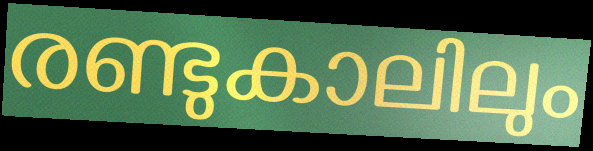
രണ്ടുകാലിലും